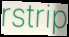
rstrip